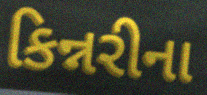
કિન્નરીના